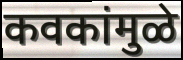
कवकांमुळे